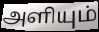
அளியும்